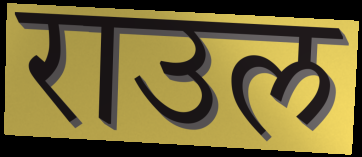
राउल